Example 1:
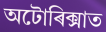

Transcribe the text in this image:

অটোৰিক্সাত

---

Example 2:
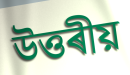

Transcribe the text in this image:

উত্তৰীয়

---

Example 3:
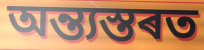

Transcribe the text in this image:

অন্ত্যস্তৰত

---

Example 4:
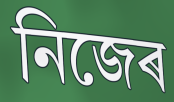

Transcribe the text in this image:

নিজেৰ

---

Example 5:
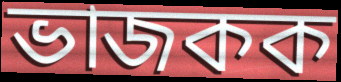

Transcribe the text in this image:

ভাজকক